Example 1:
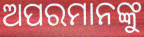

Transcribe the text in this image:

ଅପରମାନଙ୍କୁ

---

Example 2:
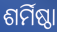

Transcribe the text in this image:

ଶର୍ମିଷ୍ଠା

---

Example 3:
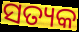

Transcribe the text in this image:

ସତ୍ୟକ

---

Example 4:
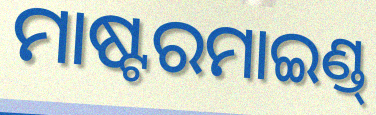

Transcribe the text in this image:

ମାଷ୍ଟରମାଇଣ୍ଡ୍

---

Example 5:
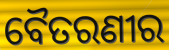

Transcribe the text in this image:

ବୈତରଣୀର